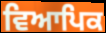
ਵਿਆਪਿਕ